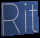
Rit